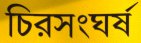
চিরসংঘর্ষ